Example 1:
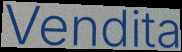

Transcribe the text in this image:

Vendita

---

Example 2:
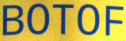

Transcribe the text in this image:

BOTOF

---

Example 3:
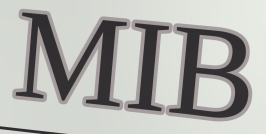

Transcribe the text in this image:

MIB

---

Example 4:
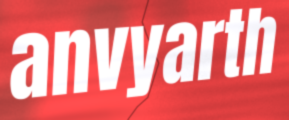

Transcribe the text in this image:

anvyarth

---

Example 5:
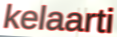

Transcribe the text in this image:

kelaarti